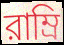
রাম্রি